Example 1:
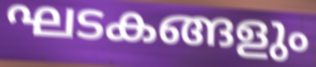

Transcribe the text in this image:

ഘടകങ്ങളും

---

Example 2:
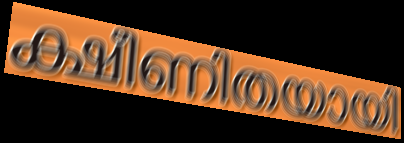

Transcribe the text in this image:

ക്ഷീണിതയായി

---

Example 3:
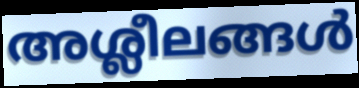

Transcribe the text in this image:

അശ്ലീലങ്ങൾ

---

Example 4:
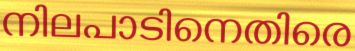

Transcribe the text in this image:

നിലപാടിനെതിരെ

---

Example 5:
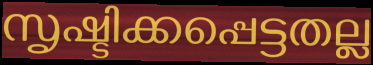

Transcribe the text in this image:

സൃഷ്ടിക്കപ്പെട്ടതല്ല